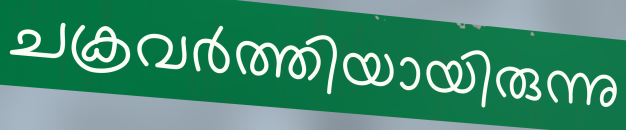
ചക്രവർത്തിയായിരുന്നു